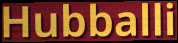
Hubballi